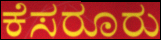
ಕೆಸರೂರು